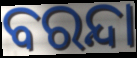
ବରନ୍ଦା